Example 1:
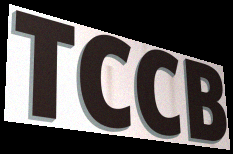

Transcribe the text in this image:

TCCB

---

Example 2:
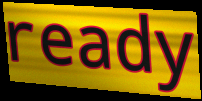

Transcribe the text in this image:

ready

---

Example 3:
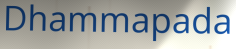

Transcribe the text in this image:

Dhammapada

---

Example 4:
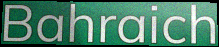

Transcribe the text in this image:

Bahraich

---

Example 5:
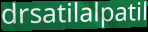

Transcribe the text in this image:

drsatilalpatil